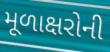
મૂળાક્ષરોની